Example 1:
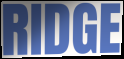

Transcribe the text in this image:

RIDGE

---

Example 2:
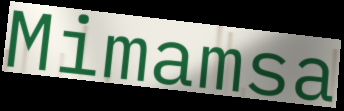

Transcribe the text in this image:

Mimamsa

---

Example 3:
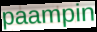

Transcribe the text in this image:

paampin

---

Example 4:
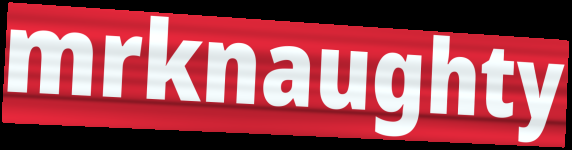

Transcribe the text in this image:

mrknaughty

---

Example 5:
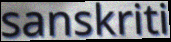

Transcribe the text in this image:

sanskriti